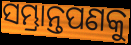
ସମ୍ଭ୍ରାନ୍ତପଣକୁ